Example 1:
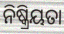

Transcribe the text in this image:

ନିଷ୍କ୍ରିୟତା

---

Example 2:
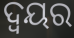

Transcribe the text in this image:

ଦ୍ବୟର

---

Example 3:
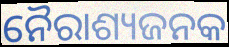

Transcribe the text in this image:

ନୈରାଶ୍ୟଜନକ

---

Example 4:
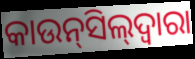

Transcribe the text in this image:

କାଉନ୍‌ସିଲ୍‌ଦ୍ବାରା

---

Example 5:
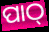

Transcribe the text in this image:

ପାଠ୍